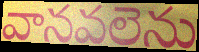
వానవలెను